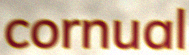
cornual